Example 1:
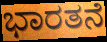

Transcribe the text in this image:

ಭಾರತನೆ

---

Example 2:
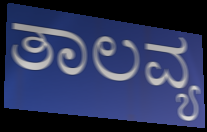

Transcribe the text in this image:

ತಾಲವ್ಯ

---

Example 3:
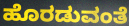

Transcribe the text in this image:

ಹೊರಡುವಂತೆ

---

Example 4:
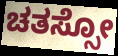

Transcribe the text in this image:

ಚತಸ್ಸೋ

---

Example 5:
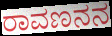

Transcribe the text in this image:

ರಾವಣನನ